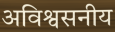
अविश्वसनीय